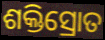
ଶକ୍ତିସ୍ରୋତ